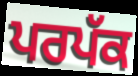
ਪਰਪੱਕ